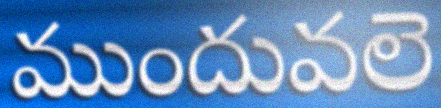
ముందువలె